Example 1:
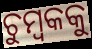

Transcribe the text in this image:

ଚୁମ୍ୱକକୁ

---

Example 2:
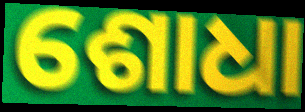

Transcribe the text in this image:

ଶୋଧା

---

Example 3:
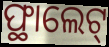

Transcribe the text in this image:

ଫ୍ଥାଲେଟ୍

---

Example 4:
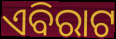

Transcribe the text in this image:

ଏବିରାଟ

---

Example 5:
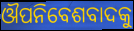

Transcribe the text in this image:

ଔପନିବେଶବାଦକୁ